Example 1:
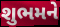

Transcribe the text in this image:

શુભમને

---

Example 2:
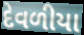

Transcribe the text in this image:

દેવળીયા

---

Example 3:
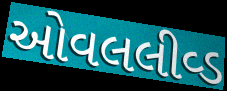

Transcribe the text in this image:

ઓવલલીવ્ડ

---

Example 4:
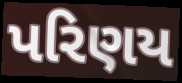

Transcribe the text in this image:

પરિણય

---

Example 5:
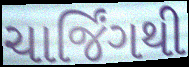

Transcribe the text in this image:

ચાર્જિંગથી